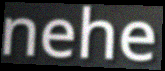
nehe